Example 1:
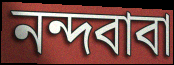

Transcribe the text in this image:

নন্দবাবা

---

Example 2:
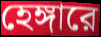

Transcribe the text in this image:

হেঙ্গারে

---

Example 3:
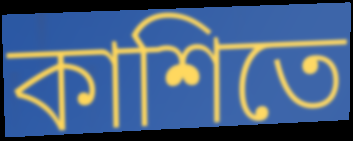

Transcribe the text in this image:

কাশিতে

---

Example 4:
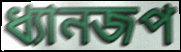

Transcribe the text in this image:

ধ্যানজপ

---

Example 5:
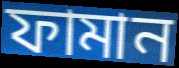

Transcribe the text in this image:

ফামান